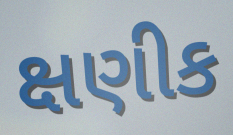
ક્ષણીક